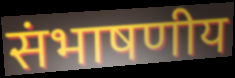
संभाषणीय